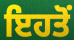
ਇਹਤੋਂ